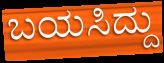
ಬಯಸಿದ್ದು